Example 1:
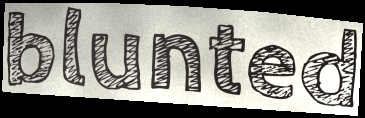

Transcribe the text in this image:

blunted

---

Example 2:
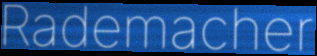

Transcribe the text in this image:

Rademacher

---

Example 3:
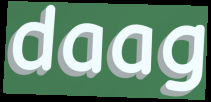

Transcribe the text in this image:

daag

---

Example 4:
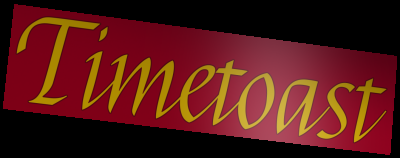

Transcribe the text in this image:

Timetoast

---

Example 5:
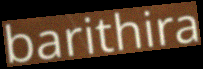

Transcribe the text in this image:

barithira